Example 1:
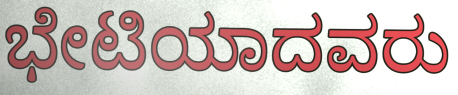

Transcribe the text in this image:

ಭೇಟಿಯಾದವರು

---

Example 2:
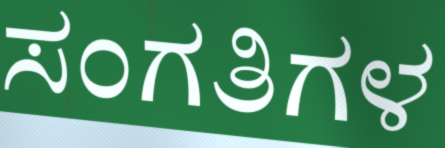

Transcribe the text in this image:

ಸಂಗತಿಗಳ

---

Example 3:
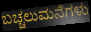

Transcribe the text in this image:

ಬಚ್ಚಲುಮನೆಗಳು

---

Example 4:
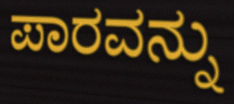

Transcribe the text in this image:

ಪಾರವನ್ನು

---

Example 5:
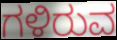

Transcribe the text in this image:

ಗಳಿರುವ